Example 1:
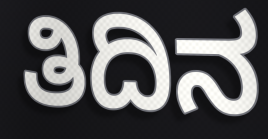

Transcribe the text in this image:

ತಿದಿನ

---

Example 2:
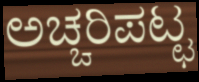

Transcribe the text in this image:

ಅಚ್ಚರಿಪಟ್ಟ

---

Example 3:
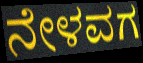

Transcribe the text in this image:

ನೇಳವಗ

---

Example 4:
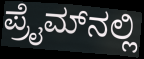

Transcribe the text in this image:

ಪ್ರೈಮ್‌ನಲ್ಲಿ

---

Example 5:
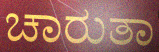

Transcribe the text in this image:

ಚಾರುತಾ